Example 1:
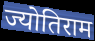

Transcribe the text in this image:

ज्योतिराम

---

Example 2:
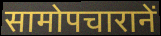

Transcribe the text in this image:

सामोपचारानें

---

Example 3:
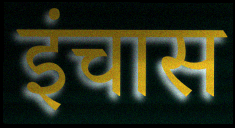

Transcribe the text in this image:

इंचास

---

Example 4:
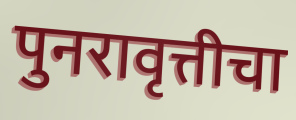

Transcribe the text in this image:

पुनरावृत्तीचा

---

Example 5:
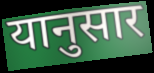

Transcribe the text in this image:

यानुसार